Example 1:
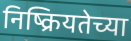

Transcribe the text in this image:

निष्क्रियतेच्या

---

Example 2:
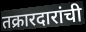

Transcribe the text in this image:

तक्रारदारांची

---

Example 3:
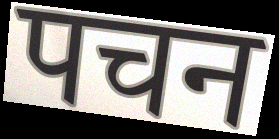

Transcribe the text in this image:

पचन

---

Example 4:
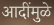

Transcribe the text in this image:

आदींमुळे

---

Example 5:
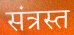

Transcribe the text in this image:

संत्रस्त